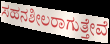
ಸಹನಶೀಲರಾಗುತ್ತೇವೆ